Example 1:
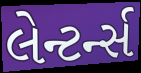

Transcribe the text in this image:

લેન્ટર્ન્સ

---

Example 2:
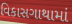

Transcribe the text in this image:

વિકાસગાથામાં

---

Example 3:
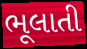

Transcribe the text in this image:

ભૂલાતી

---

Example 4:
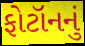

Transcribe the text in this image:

ફોટૉનનું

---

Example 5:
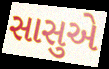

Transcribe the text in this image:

સાસુએ